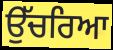
ਉੱਚਰਿਆ